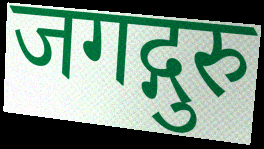
जगद्गुरु